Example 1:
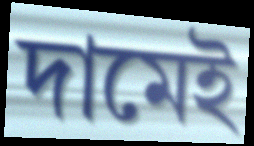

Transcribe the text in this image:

দামেই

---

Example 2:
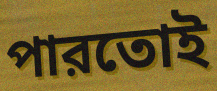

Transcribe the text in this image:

পারতোই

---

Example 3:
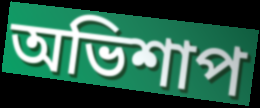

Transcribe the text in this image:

অভিশাপ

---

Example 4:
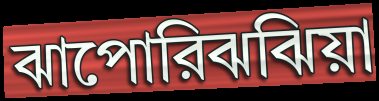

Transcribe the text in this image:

ঝাপোরিঝঝিয়া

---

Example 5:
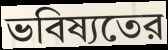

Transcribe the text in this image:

ভবিষ্যতের